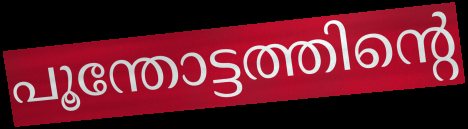
പൂന്തോട്ടത്തിന്റെ